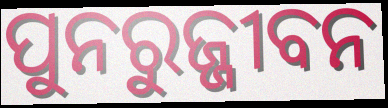
ପୁନରୁଜ୍ଜୀବନ